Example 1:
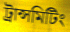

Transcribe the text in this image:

ট্রান্সমিটিং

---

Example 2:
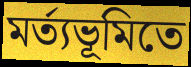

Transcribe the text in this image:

মর্ত্যভূমিতে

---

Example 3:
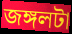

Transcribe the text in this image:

জঙ্গলটা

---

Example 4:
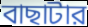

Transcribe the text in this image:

বাছাটার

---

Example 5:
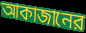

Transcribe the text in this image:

আকাজানের